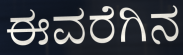
ಈವರೆಗಿನ